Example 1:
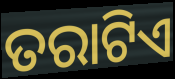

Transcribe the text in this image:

ତରାଟିଏ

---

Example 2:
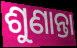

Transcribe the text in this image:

ଶୁଣାନ୍ତା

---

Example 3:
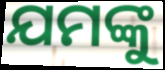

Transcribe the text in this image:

ଯମଙ୍କୁ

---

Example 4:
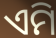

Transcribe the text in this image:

ଏମି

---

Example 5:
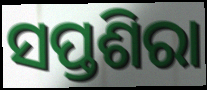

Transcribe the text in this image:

ସପ୍ତଶିରା